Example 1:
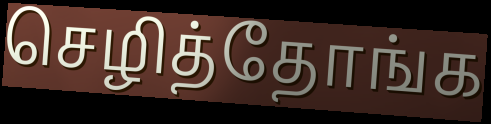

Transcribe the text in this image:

செழித்தோங்க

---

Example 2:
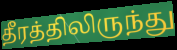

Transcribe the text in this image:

தீரத்திலிருந்து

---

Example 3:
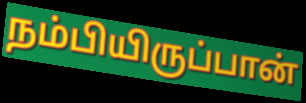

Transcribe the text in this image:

நம்பியிருப்பான்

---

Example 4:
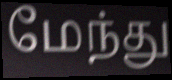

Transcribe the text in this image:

மேந்து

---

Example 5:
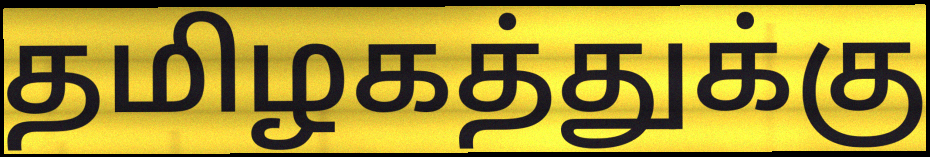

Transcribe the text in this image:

தமிழகத்துக்கு